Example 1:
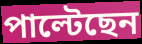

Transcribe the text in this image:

পাল্টেছেন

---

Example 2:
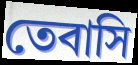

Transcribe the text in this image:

তেবাসি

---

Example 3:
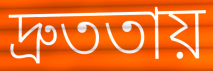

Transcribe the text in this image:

দ্রুততায়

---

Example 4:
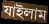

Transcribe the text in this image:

যাইলাম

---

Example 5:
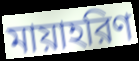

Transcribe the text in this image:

মায়াহরিণ